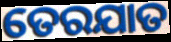
ତେରଯାତ